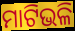
ମାଟିଭଳି